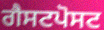
ਗੈਸਟਪੋਸਟ